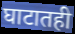
घाटातही